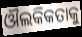
ଔଲକିକତାକୁ